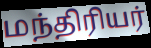
மந்திரியர்